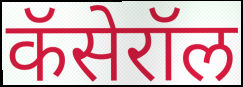
कॅसेरॉल